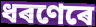
ধৰণেৰে